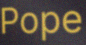
Pope